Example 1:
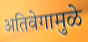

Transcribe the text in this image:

अतिवेगामुळे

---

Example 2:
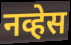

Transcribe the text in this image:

नव्हेस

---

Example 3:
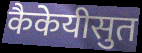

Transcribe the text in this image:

कैकेयीसुत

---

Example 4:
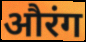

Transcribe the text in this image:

औरंग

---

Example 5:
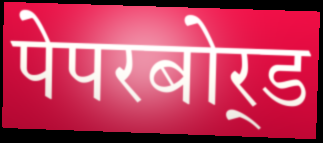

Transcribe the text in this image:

पेपरबोर्ड